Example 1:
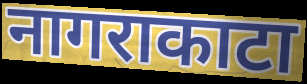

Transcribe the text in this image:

नागराकाटा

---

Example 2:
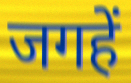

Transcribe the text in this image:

जगहें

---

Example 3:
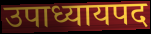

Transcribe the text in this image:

उपाध्यायपद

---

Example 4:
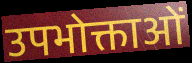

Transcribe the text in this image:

उपभोक्ताओं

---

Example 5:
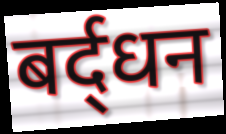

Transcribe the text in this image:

बर्द्धन